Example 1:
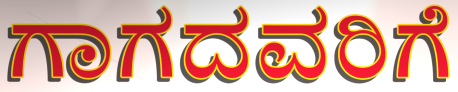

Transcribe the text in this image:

ಗಾಗದವರಿಗೆ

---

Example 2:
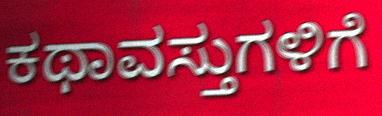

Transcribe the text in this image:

ಕಥಾವಸ್ತುಗಳಿಗೆ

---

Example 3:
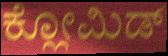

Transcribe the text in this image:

ಕ್ಲೋಮಿಡ್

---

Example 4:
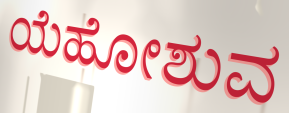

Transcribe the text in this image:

ಯೆಹೋಶುವ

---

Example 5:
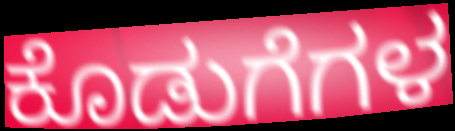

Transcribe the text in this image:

ಕೊಡುಗೆಗಳ